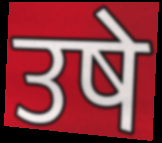
उषे